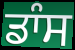
ਡਾੰਸ